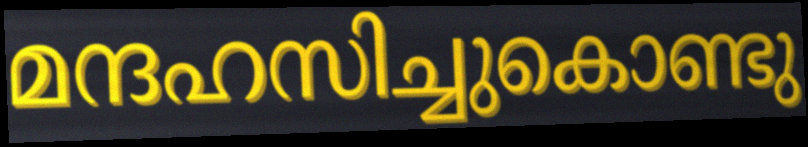
മന്ദഹസിച്ചുകൊണ്ടു